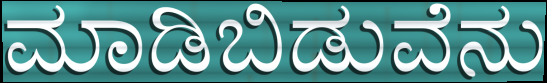
ಮಾಡಿಬಿಡುವೆನು